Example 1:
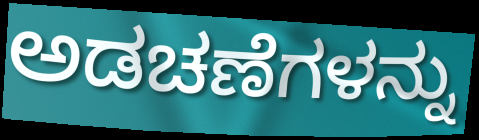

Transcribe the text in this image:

ಅಡಚಣೆಗಳನ್ನು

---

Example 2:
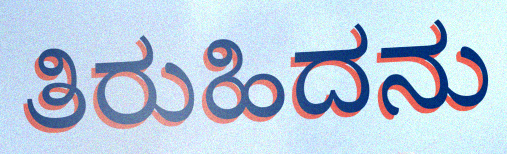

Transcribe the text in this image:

ತಿರುಹಿದನು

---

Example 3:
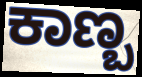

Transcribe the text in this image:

ಕಾಣ್ಬ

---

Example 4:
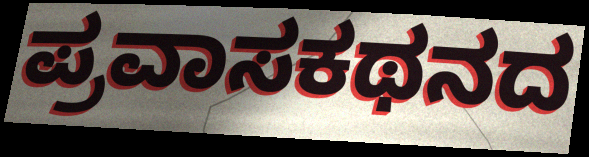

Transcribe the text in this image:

ಪ್ರವಾಸಕಥನದ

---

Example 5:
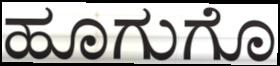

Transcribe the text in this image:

ಹೂಗುಗೊ